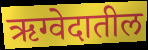
ऋग्वेदातील